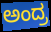
ಅಂದ್ರ